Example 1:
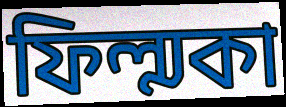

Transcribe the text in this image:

ফিল্মকা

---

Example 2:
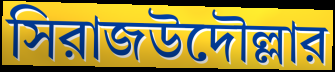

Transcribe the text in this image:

সিরাজউদৌল্লার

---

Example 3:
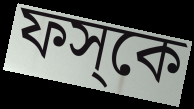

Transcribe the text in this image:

ফস্‌কে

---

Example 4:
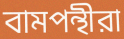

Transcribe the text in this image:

বামপন্থীরা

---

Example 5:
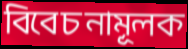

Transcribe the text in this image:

বিবেচনামূলক